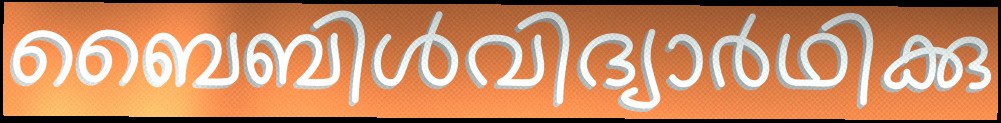
ബൈബിൾവിദ്യാർഥിക്കു